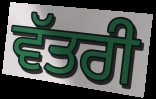
ਵੱਤਰੀ